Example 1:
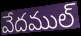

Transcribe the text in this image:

వేదముల్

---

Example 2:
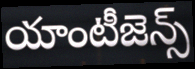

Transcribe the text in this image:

యాంటీజెన్స్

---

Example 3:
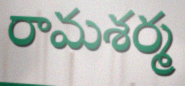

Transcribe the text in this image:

రామశర్మ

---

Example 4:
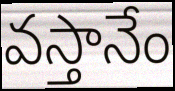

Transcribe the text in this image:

వస్తానేం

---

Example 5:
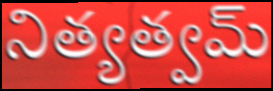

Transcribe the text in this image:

నిత్యత్వమ్